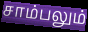
சாம்பலும்